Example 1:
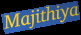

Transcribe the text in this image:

Majithiya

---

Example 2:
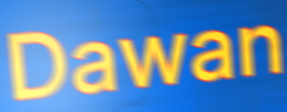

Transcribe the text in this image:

Dawan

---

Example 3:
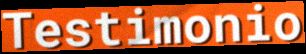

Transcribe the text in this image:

Testimonio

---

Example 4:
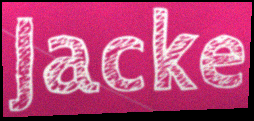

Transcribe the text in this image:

Jacke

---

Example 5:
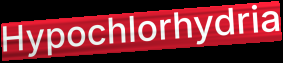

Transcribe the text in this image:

Hypochlorhydria